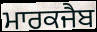
ਮਾਰਕਜੈਬ